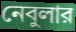
নেবুলার